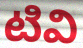
టివి